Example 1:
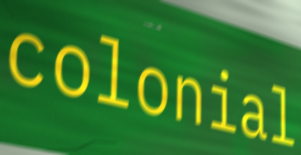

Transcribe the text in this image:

colonial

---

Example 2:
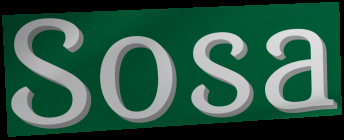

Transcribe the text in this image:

Sosa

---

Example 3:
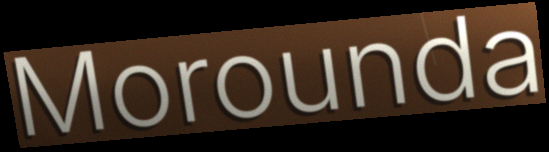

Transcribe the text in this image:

Morounda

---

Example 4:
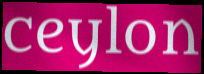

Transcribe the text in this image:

ceylon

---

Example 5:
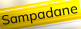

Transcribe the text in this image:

Sampadane